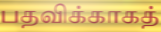
பதவிக்காகத்